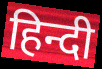
हिन्दी